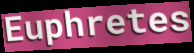
Euphretes